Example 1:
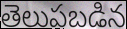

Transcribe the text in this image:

తెలుపబడిన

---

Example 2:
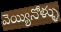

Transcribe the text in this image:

వెయ్యినోళ్ళు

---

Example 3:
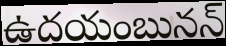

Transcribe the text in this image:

ఉదయంబునన్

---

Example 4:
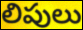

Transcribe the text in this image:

లిపులు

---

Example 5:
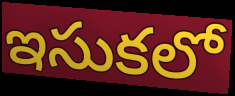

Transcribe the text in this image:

ఇసుకలో